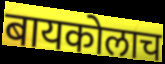
बायकोलाच